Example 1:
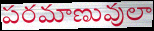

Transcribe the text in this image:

పరమాణువులా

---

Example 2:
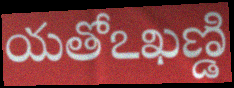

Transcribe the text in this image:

యతోఽఖణ్డి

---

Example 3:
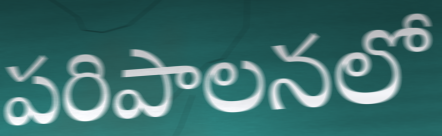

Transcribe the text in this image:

పరిపాలనలో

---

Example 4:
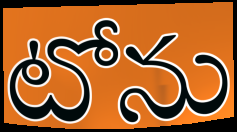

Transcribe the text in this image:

టోను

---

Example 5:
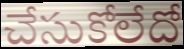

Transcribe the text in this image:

చేసుకోలేదో